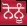
ਨੋਨੂੰ